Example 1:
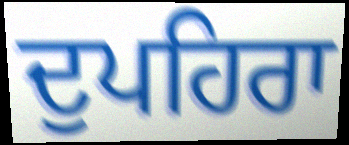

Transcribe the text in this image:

ਦੁਪਹਿਰਾ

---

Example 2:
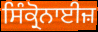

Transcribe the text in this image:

ਸਿੰਕ੍ਰੋਨਾਈਜ਼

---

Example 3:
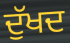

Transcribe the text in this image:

ਦੁੱਖਦ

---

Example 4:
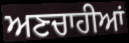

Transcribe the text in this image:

ਅਣਚਾਹੀਆਂ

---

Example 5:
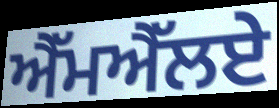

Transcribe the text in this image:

ਐੱਮਐੱਲਏ